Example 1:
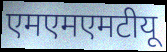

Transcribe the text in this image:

एमएमएमटीयू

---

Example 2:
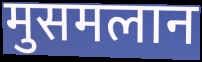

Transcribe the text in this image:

मुसमलान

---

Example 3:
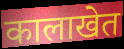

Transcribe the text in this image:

कालाखेत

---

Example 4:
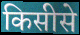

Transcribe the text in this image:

किसीसे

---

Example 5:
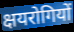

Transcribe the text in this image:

क्षयरोगियों